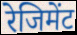
रेजिमेंट